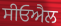
ਸੀਓਐਲ